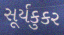
સૂર્યકુકર